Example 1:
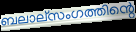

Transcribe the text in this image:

ബലാല്സംഗത്തിന്റെ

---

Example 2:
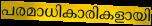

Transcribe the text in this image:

പരമാധികാരികളായി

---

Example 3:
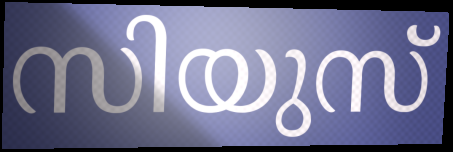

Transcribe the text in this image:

സിയുസ്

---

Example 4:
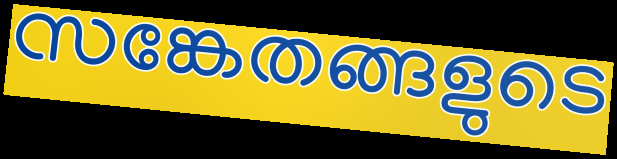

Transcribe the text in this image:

സങ്കേതങ്ങളുടെ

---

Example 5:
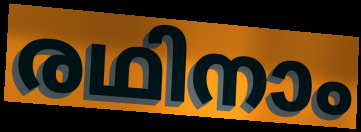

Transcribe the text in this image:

രഥിനാം